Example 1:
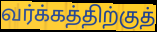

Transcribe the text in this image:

வர்க்கத்திற்குத்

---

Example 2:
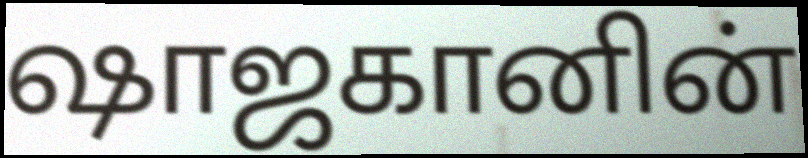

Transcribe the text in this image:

ஷாஜகானின்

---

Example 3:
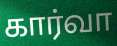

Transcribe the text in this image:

கார்வா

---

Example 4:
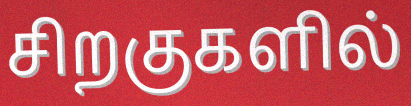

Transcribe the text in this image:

சிறகுகளில்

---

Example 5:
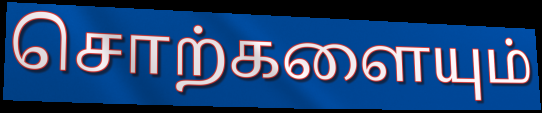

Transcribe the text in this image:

சொற்களையும்